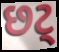
છટ્